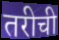
तरीची